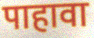
पाहावा